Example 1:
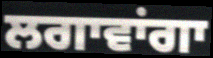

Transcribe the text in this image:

ਲਗਾਵਾਂਗਾ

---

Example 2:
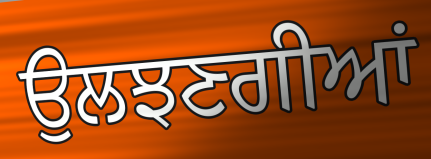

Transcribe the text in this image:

ਉਲਝਣਗੀਆਂ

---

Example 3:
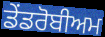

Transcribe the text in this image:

ਡੇਂਡਰੋਬੀਅਮ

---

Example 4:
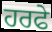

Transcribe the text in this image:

ਹਰਫੇ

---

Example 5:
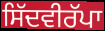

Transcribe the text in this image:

ਸਿੱਦਵੀਰੱਪਾ